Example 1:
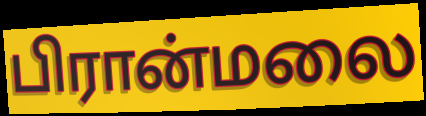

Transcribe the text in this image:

பிரான்மலை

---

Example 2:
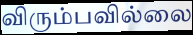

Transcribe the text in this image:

விரும்பவில்லை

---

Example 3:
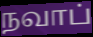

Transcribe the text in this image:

நவாப்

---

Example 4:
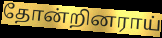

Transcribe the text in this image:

தோன்றினராய்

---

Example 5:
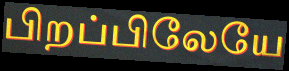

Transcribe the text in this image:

பிறப்பிலேயே